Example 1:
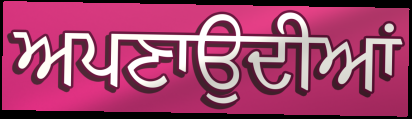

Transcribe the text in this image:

ਅਪਣਾਉਦੀਆਂ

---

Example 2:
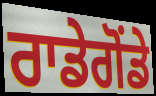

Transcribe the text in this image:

ਰਾਡੇਗੋਂਡੇ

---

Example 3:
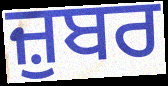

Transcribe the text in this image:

ਜ਼ੁਬਰ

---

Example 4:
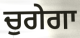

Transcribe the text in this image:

ਚੁਗੇਗਾ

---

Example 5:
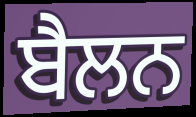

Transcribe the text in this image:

ਬੈਲਨ